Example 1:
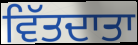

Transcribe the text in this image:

ਵਿੱਤਦਾਤਾ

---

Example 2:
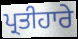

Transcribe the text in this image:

ਪ੍ਰਤੀਹਾਰੇ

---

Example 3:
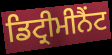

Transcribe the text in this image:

ਡਿਟ੍ਰੀਮੀਨੈਂਟ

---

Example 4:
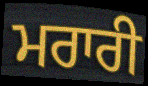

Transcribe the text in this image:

ਮਰਾਰੀ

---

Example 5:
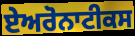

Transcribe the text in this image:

ਏਅਰੋਨਾਟੀਕਸ